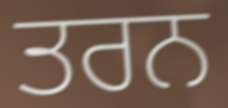
ਤਰਨ